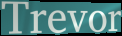
Trevor